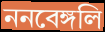
ননবেঙ্গলি